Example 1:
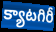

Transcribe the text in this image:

క్యాటగిరీ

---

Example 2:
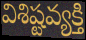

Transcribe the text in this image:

విశిష్టవ్యక్తి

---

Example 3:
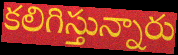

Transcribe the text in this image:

కలిగిస్తున్నారు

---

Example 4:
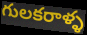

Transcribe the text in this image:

గులకరాళ్ళ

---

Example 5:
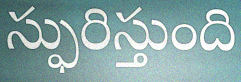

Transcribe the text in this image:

స్ఫురిస్తుంది